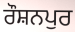
ਰੌਸ਼ਨਪੁਰ